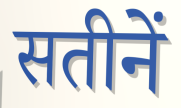
सतीनें